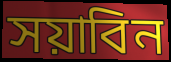
সয়াবিন